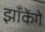
झाँकेंगे